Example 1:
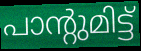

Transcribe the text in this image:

പാന്റുമിട്ട്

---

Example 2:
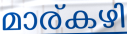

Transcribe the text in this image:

മാര്കഴി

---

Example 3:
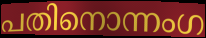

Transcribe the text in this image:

പതിനൊന്നംഗ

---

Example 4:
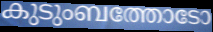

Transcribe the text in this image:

കുടുംബത്തോടോ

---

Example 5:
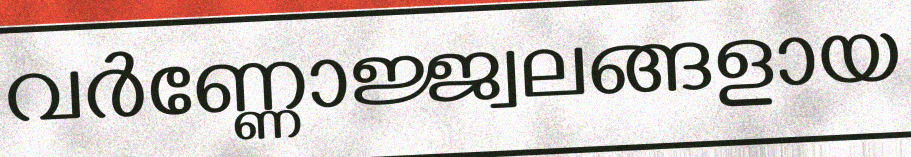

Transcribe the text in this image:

വർണ്ണോജ്ജ്വലങ്ങളായ